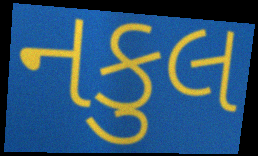
નકુલ